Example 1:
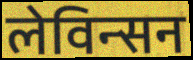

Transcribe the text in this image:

लेविन्सन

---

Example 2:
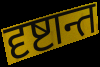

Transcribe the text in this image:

दृष्टान्त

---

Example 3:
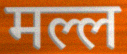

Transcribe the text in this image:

मल्ल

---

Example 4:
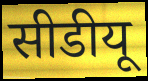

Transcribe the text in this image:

सीडीयू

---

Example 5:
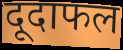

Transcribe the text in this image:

दूदाफल